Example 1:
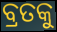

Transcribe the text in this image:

ବ୍ରତକୁ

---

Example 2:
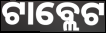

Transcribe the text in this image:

ଟାବ୍ଲେଟ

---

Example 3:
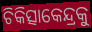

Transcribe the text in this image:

ଚିକିତ୍ସାକେନ୍ଦ୍ରକୁ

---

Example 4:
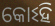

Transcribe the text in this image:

କୋଽହି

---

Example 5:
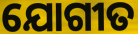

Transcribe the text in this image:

ଯୋଗୀତ